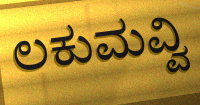
ಲಕುಮವ್ವಿ